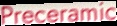
Preceramic